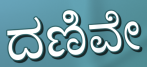
ದಣಿವೇ